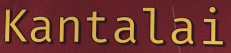
Kantalai